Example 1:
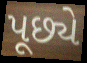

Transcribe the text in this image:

પૂછ્યે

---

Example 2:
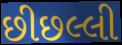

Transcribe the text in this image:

છીછલ્લી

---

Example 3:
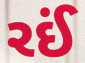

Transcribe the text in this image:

રઈં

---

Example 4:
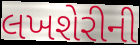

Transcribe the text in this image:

લખશેરીની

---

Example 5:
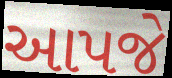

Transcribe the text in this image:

આપજે